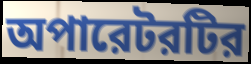
অপারেটরটির